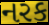
નરક